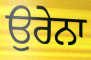
ਉਰੇਨਾ